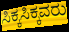
ಸಿಕ್ಕಸಿಕ್ಕವರು